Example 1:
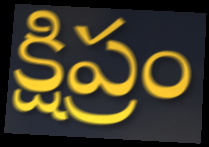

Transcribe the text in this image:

క్షిప్రం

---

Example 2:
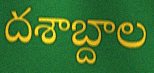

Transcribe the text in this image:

దశాబ్దాల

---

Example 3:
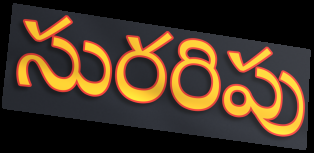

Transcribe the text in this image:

సురరిపు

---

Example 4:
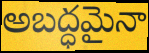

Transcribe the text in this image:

అబద్ధమైనా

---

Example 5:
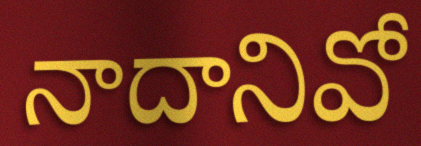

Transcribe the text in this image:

నాదానివో